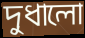
দুধালো